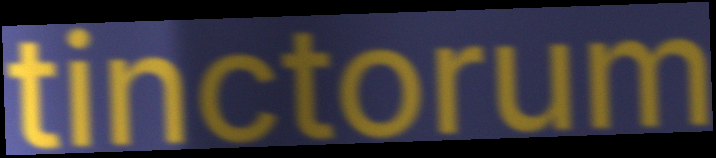
tinctorum